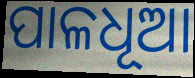
ପାଳଧୂଆ